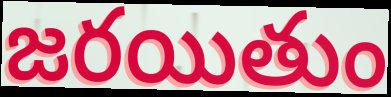
జరయితుం